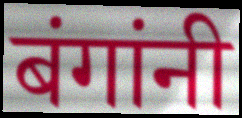
बंगांनी